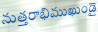
నుత్తరాభిముఖుండై